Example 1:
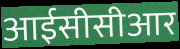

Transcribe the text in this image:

आईसीसीआर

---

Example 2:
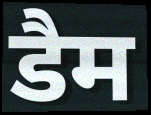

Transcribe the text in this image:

डैम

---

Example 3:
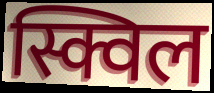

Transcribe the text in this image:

स्क्विल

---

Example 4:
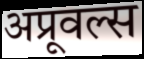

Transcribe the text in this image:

अप्रूवल्स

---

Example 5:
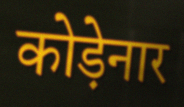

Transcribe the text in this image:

कोड़ेनार